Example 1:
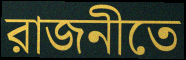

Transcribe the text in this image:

রাজনীতে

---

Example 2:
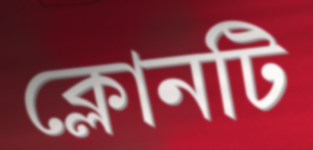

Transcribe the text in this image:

ক্লোনটি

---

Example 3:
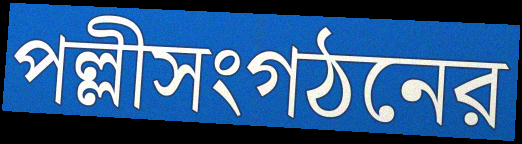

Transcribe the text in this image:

পল্লীসংগঠনের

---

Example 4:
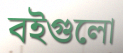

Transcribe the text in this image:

বইগুলো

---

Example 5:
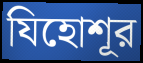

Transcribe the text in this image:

যিহোশূর